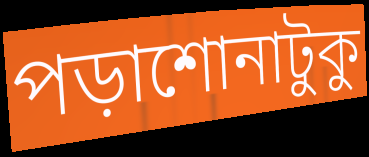
পড়াশোনাটুকু